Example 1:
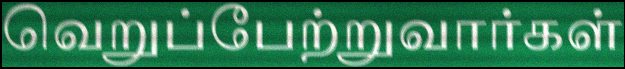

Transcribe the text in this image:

வெறுப்பேற்றுவார்கள்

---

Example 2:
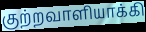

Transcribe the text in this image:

குற்றவாளியாக்கி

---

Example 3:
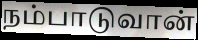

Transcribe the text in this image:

நம்பாடுவான்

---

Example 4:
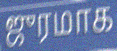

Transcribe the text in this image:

ஜுரமாக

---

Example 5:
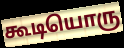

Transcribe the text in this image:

கூடியொரு